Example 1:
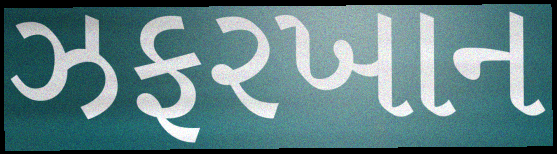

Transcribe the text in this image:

ઝફરખાન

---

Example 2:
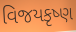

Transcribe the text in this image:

વિજયકૃષ્ણ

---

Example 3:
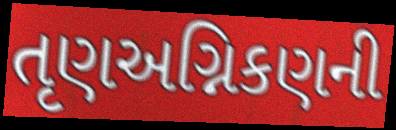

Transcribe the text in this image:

તૃણઅગ્નિકણની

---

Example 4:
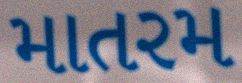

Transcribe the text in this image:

માતરમ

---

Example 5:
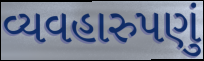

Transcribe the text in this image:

વ્યવહારુપણું